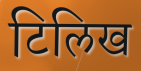
टिलिख